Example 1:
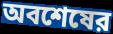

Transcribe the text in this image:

অবশেষের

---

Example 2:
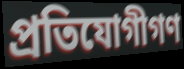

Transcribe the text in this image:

প্রতিযোগীগণ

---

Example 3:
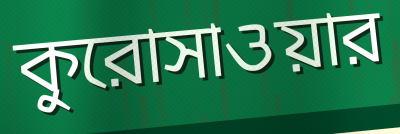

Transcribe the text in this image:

কুরোসাওয়ার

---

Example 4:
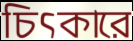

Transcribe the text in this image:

চিৎকারে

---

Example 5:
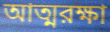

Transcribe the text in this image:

আত্মরক্ষা